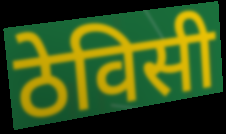
ठेविसी